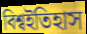
বিশ্বইতিহাস